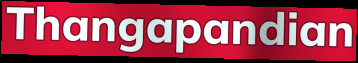
Thangapandian